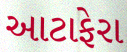
આટાફેરા